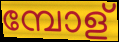
മ്പോള്